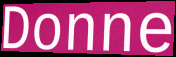
Donne